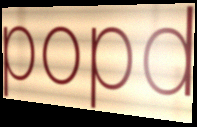
popd